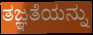
ತಜ್ಞತೆಯನ್ನು